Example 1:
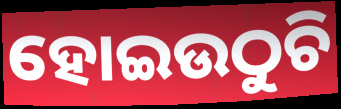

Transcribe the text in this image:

ହୋଇଉଠୁଚି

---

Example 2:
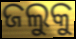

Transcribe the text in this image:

ଜଲୁକୁ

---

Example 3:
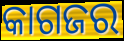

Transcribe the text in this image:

କାଗଜର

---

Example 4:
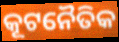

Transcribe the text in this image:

କୂଟନୈତିକ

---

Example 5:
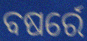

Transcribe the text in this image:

ବଷର୍ରେ